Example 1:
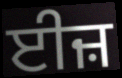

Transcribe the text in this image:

ਈਜ਼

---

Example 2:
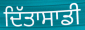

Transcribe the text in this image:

ਦਿੱਤਾਸਾਡੀ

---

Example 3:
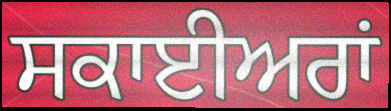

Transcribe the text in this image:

ਸਕਾਈਅਰਾਂ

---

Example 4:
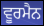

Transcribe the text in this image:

ਵੂਰਮੈਨ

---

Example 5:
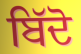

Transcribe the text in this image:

ਬਿੱਦੋ